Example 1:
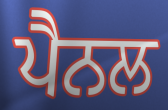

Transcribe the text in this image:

ਪੈਨਲ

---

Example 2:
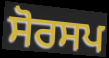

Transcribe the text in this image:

ਸੋਰਸਪ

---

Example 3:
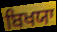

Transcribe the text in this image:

ਬਿਖਯਾ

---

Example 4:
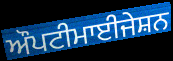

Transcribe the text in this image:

ਔਪਟੀਮਾਈਜੇਸ਼ਨ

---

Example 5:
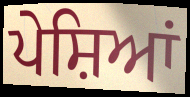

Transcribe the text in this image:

ਪੇਸ਼ਿਆਂ